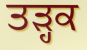
ਤੜ੍ਹਕ